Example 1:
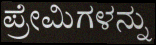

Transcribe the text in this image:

ಪ್ರೇಮಿಗಳನ್ನು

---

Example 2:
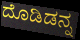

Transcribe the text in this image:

ದೊಡಿಡನ್ನ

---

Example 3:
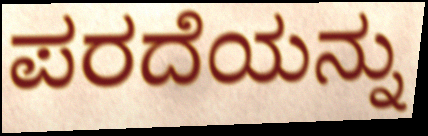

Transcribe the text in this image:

ಪರದೆಯನ್ನು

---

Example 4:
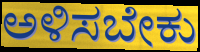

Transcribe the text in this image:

ಅಳಿಸಬೇಕು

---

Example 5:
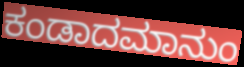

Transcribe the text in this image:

ಕಂಡಾದಮಾನುಂ